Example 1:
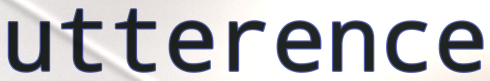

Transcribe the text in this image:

utterence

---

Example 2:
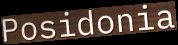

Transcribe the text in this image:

Posidonia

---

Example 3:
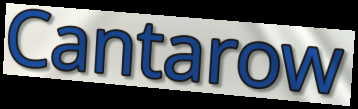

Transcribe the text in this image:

Cantarow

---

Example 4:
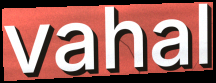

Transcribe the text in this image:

vahal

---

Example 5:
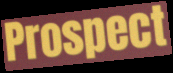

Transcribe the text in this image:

Prospect